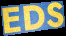
EDS